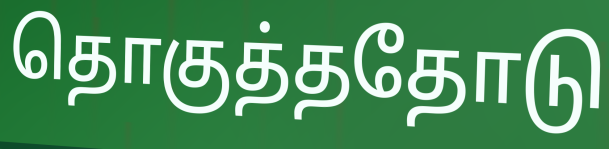
தொகுத்ததோடு